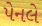
પેનલે